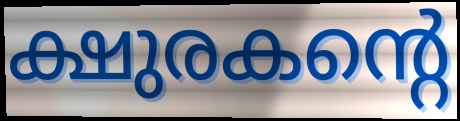
ക്ഷുരകന്റെ